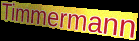
Timmermann